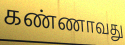
கண்ணாவது